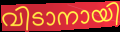
വിടാനായി